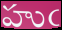
హుఁ